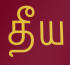
தீய